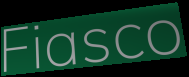
Fiasco